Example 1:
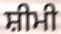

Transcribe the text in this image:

ਸ਼ੀਮੀ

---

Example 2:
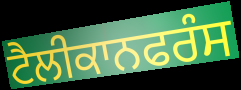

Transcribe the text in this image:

ਟੈਲੀਕਾਨਫਰੰਸ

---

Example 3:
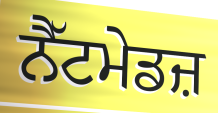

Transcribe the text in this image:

ਨੈੱਟਮੇਡਜ਼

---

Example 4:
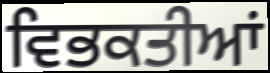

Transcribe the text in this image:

ਵਿਭਕਤੀਆਂ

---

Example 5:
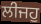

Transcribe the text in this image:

ਲੀਜਹੁ